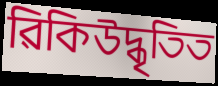
ৱিকিউদ্ধৃতিত